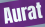
Aurat